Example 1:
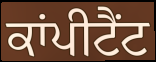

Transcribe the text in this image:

ਕਾਂਪੀਟੈਂਟ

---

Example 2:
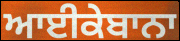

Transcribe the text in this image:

ਆਈਕੇਬਾਨਾ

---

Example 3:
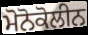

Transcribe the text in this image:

ਮੋਨੋਕੋਲੀਨ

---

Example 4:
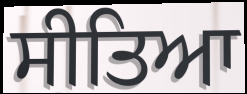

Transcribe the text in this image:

ਸੀਤਿਆ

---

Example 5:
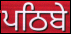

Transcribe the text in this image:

ਪਠਿਬੇ